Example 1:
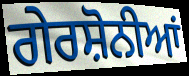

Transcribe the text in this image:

ਗੇਰਸ਼ੋਨੀਆਂ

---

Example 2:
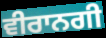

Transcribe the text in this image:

ਵੀਰਾਨਗੀ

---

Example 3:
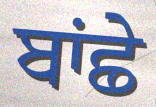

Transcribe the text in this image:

ਬਾਂਛੇ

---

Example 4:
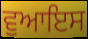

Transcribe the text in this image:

ਵੁਆਇਸ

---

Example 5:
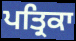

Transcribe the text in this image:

ਪਤ੍ਰਿਕਾ